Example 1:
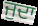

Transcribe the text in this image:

ਜੁਦਾ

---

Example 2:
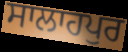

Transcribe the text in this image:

ਸਾਲਾਹਪੁਰ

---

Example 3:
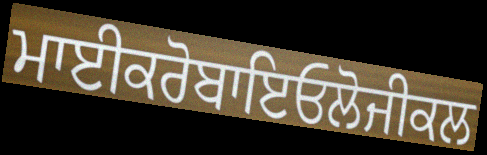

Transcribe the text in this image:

ਮਾਈਕਰੋਬਾਇਓਲੋਜੀਕਲ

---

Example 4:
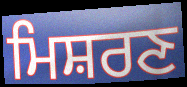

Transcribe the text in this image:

ਮਿਸ਼ਰਣ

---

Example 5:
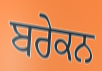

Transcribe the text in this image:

ਬਰੇਕਨ